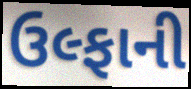
ઉલ્ફાની